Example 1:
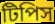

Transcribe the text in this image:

টিপিস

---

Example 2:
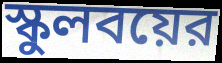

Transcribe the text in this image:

স্কুলবয়ের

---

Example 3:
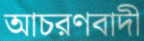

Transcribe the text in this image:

আচরণবাদী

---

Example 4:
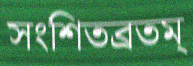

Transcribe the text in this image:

সংশিতব্রতম্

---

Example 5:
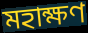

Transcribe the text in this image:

মহাক্ষণ